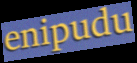
enipudu